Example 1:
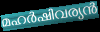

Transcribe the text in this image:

മഹർഷിവര്യൻ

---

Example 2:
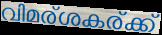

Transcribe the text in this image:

വിമര്ശകര്ക്ക്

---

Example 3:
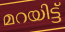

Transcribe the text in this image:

മറയിട്ട്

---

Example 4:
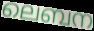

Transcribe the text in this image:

ലെബന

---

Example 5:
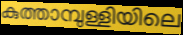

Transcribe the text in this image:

കുത്താമ്പുള്ളിയിലെ